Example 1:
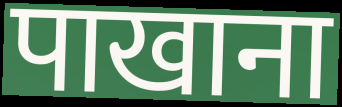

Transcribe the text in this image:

पाखाना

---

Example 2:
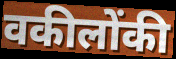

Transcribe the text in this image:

वकीलोंकी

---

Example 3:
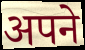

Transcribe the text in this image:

अपने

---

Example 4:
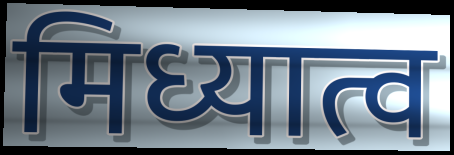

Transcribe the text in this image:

मिध्यात्व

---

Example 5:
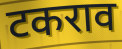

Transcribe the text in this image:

टकराव